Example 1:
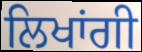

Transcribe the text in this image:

ਲਿਖਾਂਗੀ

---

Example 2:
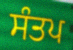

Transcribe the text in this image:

ਸੰਤਪ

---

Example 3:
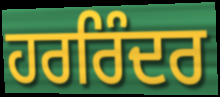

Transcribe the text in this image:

ਹਰਰਿੰਦਰ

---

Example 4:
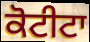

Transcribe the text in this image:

ਕੋਟੀਟਾ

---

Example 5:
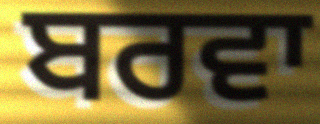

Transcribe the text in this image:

ਬਰਵਾ